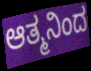
ಆತ್ಮನಿಂದ